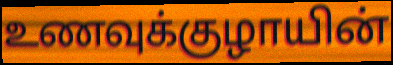
உணவுக்குழாயின்